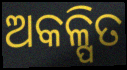
ଅକଳ୍ପିତ